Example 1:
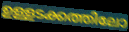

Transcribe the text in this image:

ഉള്ളടക്കത്തിലോ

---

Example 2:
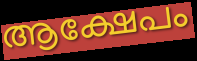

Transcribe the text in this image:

ആക്ഷേപം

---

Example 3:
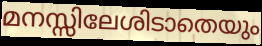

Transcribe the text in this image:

മനസ്സിലേശിടാതെയും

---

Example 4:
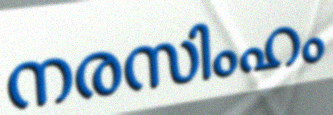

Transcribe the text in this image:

നരസിംഹം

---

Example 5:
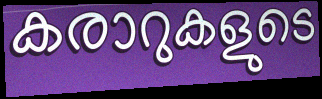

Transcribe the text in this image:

കരാറുകളുടെ